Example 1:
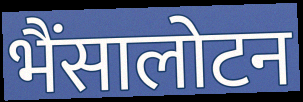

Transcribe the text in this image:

भैंसालोटन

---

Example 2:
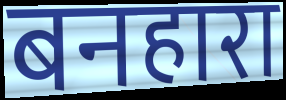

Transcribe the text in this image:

बनहारा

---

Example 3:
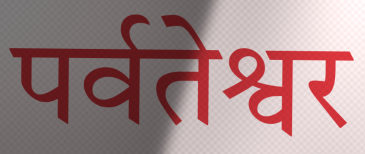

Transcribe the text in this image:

पर्वतेश्वर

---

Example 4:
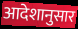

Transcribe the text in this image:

आदेशानुसार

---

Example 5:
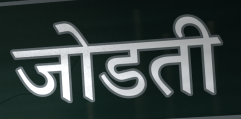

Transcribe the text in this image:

जोडती